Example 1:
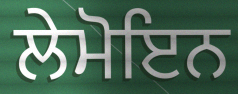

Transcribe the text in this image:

ਲੇਮੋਇਨ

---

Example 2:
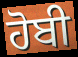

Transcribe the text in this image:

ਹੋਬੀ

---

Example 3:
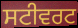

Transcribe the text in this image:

ਸਟੀਵਰਟ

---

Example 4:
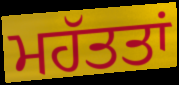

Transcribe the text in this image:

ਮਹੱਤਤਾਂ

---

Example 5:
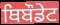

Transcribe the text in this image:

ਥਿਬੌਡੇਟ